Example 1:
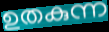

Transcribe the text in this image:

ഉതകുന്ന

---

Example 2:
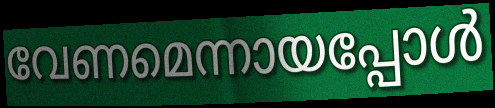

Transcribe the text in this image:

വേണമെന്നായപ്പോൾ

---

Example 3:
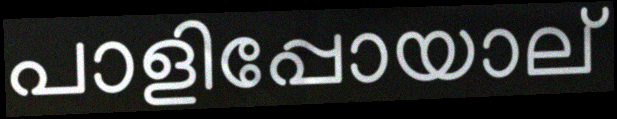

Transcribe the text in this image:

പാളിപ്പോയാല്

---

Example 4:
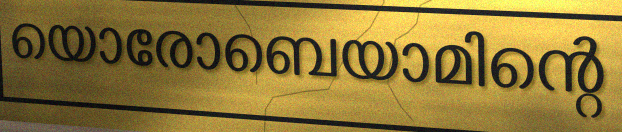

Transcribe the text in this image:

യൊരോബെയാമിന്റെ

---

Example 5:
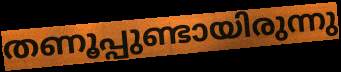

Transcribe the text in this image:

തണൂപ്പുണ്ടായിരുന്നു